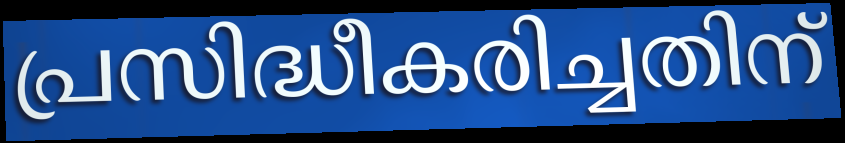
പ്രസിദ്ധീകരിച്ചതിന്